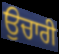
ਉਚਾਰੀ